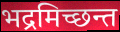
भद्रमिच्छन्त